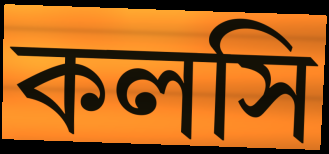
কলসি